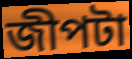
জীপটা